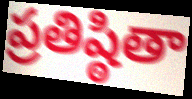
ప్రతిష్ఠితా